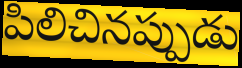
పిలిచినప్పుడు